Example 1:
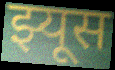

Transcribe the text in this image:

झ्यूस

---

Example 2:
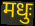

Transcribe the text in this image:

मधुः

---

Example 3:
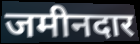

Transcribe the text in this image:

जमीनदार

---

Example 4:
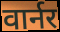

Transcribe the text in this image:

वार्नर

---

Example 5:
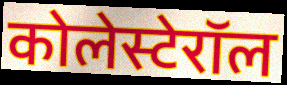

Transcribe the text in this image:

कोलेस्टेरॉल